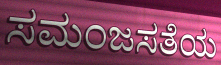
ಸಮಂಜಸತೆಯ